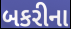
બકરીના